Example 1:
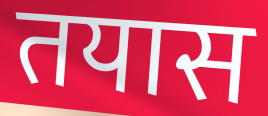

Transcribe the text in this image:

तयास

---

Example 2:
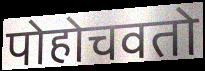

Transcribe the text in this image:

पोहोचवतो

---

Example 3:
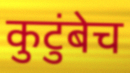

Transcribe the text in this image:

कुटुंबेच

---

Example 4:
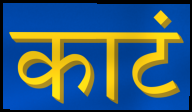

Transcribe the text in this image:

काटं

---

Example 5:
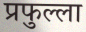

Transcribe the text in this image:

प्रफुल्ला